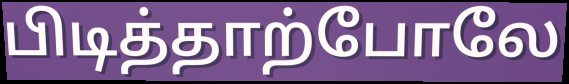
பிடித்தாற்போலே